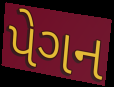
પેગન